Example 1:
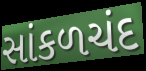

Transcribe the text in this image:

સાંકળચંદ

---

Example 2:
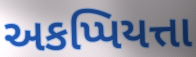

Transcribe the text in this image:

અકપ્પિયત્તા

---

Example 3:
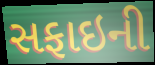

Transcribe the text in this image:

સફાઇની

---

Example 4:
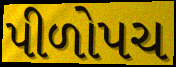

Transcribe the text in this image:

પીળોપચ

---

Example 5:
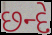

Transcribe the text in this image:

છન્દે